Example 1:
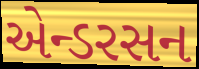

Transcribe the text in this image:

એન્ડરસન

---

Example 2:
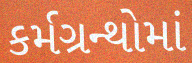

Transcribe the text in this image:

કર્મગ્રન્થોમાં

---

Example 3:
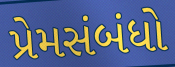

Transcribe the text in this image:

પ્રેમસંબંધો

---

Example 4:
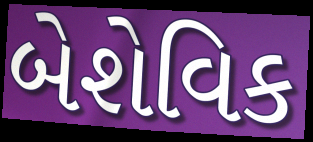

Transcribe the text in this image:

બેશેવિક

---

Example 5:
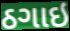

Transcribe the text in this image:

ઠગાઇ